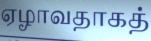
ஏழாவதாகத்